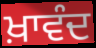
ਖ਼ਾਵੰਦ